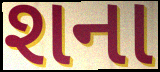
શના